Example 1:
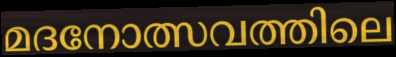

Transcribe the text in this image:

മദനോത്സവത്തിലെ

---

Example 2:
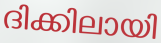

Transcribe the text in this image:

ദിക്കിലായി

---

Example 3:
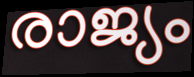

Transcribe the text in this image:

രാജ്യം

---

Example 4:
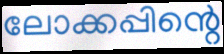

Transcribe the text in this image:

ലോക്കപ്പിന്റെ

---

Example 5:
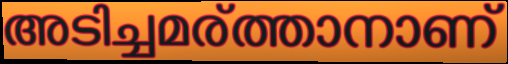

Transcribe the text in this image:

അടിച്ചമര്ത്താനാണ്